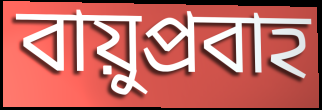
বায়ুপ্রবাহ